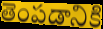
తెంపడానికి